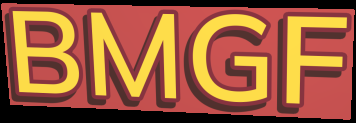
BMGF